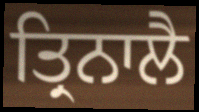
ਤ੍ਰਿਨਾਲੈ